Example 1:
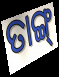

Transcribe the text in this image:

ତାଙ୍ଗ୍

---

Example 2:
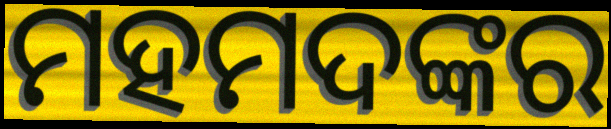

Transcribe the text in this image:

ମହମଦଙ୍କର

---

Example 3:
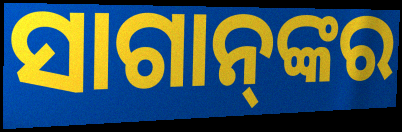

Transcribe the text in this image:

ସାଗାନ୍‌ଙ୍କର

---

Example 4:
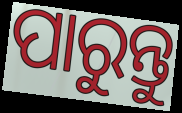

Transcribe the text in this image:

ପାରୁନ୍ତୁ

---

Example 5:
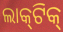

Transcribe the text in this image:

ଲାକ୍‌ଟିକ୍